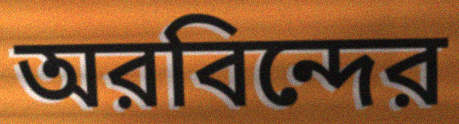
অরবিন্দের